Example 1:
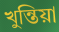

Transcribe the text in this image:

খুন্তিয়া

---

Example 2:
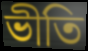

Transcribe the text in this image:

ভীতি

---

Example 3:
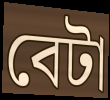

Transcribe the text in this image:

বেটা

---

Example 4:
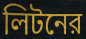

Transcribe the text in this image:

লিটনের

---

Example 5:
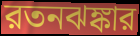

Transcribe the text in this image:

রতনঝঙ্কার